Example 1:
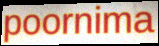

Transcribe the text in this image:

poornima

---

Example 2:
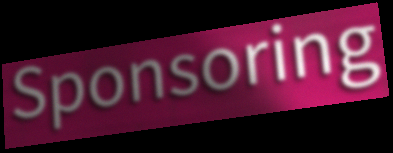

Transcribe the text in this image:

Sponsoring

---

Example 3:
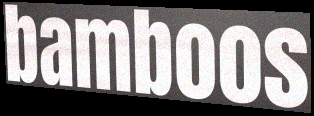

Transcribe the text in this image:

bamboos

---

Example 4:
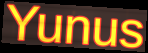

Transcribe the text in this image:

Yunus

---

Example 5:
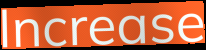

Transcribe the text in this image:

Increase